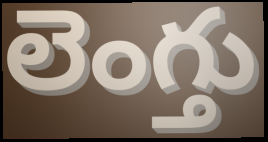
లెంగ్తు